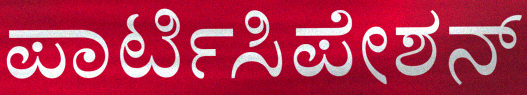
ಪಾರ್ಟಿಸಿಪೇಶನ್